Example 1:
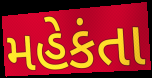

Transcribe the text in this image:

મહેકંતા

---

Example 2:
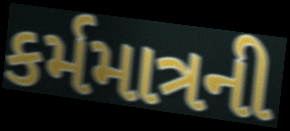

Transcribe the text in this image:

કર્મમાત્રની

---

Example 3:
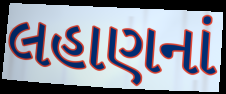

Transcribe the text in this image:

લહાણનાં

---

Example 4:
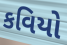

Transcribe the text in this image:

કવિયો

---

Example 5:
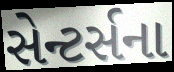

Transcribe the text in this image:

સેન્ટર્સના